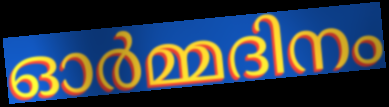
ഓർമ്മദിനം